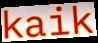
kaik